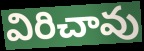
విరిచావు